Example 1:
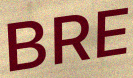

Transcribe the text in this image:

BRE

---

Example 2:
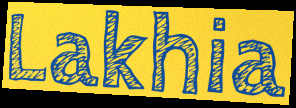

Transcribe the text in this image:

Lakhia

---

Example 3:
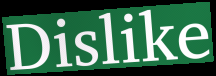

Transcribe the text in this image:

Dislike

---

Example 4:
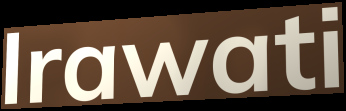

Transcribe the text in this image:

Irawati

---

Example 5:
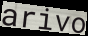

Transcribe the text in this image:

arivo